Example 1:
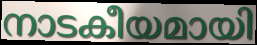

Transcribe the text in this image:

നാടകീയമായി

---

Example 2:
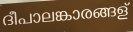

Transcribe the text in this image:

ദീപാലങ്കാരങ്ങള്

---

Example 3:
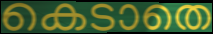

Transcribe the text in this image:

കെടാതെ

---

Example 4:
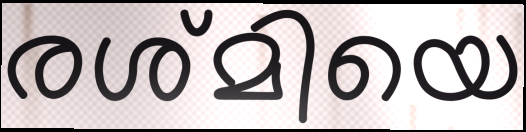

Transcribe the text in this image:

രശ്മിയെ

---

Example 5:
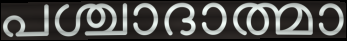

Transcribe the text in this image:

പശ്ചാദാത്മാ